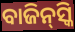
ବାଜିନ୍‌ସ୍କି